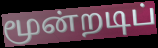
மூன்றடிப்